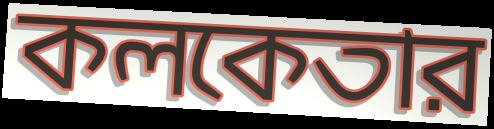
কলকেতার